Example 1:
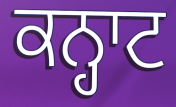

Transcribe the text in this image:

ਕਨ੍ਹਾਟ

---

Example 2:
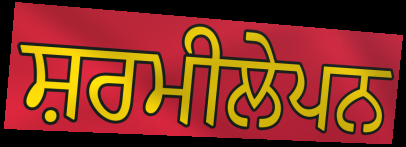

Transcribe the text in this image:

ਸ਼ਰਮੀਲੇਪਨ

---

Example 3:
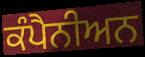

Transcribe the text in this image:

ਕੰਪੈਨੀਅਨ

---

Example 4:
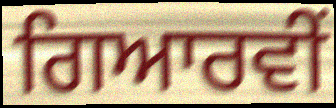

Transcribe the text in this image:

ਗਿਆਰਵੀਂ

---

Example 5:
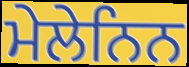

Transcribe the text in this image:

ਮੇਲੇਨਿਨ